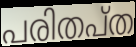
പരിതപ്ത